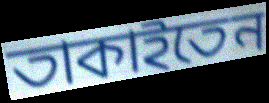
তাকাইতেন